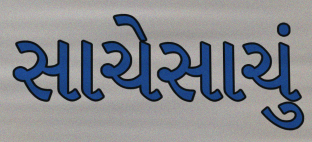
સાચેસાચું